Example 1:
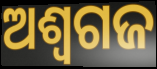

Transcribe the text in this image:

ଅଶ୍ୱଗଜ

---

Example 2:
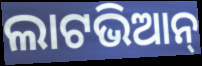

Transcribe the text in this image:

ଲାଟଭିଆନ୍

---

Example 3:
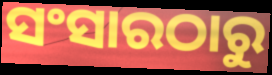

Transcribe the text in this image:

ସଂସାରଠାରୁ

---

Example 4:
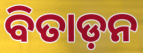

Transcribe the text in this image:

ବିତାଡ଼ନ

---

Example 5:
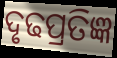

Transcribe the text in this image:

ଦୃଢପ୍ରତିଜ୍ଞ